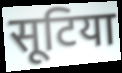
सूटिया